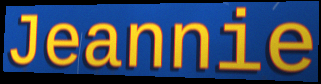
Jeannie